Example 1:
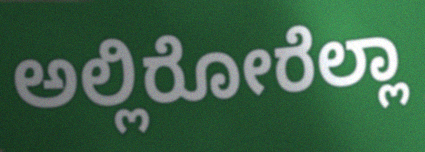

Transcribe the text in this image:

ಅಲ್ಲಿರೋರೆಲ್ಲಾ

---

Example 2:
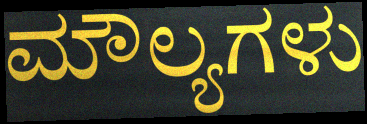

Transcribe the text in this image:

ಮೌಲ್ಯಗಳು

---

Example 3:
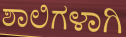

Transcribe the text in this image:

ಶಾಲಿಗಳಾಗಿ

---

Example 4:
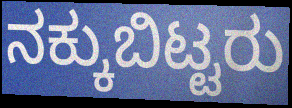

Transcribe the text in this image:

ನಕ್ಕುಬಿಟ್ಟರು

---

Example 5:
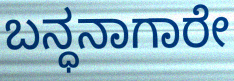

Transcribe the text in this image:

ಬನ್ಧನಾಗಾರೇ